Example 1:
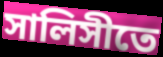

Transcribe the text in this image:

সালিসীতে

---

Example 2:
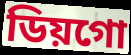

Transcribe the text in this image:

ডিয়গো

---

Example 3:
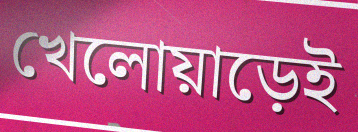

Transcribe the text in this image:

খেলোয়াড়েই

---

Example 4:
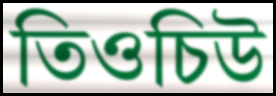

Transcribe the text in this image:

তিওচিউ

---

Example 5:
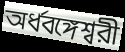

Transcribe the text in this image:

অর্ধবঙ্গেশ্বরী